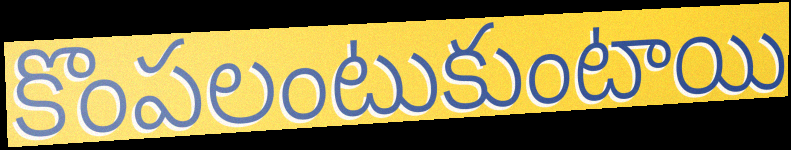
కొంపలంటుకుంటాయి